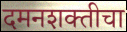
दमनशक्तीचा